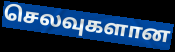
செலவுகளான